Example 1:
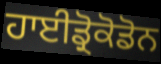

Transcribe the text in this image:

ਹਾਈਡ੍ਰੋਕੋਡੋਨ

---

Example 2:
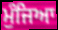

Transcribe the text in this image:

ਮੁੰਜਿਆ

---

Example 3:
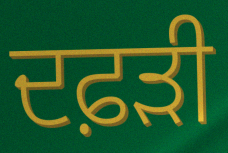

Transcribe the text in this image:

ਦਫ਼ੜੀ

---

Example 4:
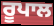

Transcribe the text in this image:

ਰੂਪਾਲ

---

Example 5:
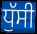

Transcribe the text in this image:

ਧੁੱਸੀ